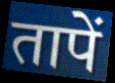
तापें